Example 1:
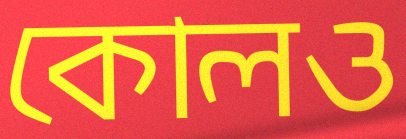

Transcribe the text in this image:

কোলও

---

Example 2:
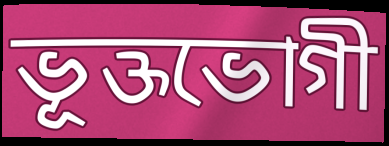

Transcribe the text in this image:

ভূক্তভোগী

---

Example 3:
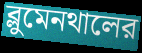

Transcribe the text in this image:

ব্লুমেনথালের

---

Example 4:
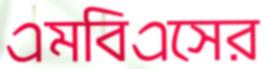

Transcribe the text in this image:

এমবিএসের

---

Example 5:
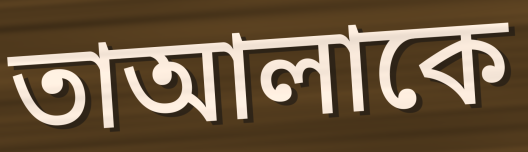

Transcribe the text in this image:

তাআলাকে